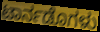
ಟಾರ್ನಡೊಗಳು